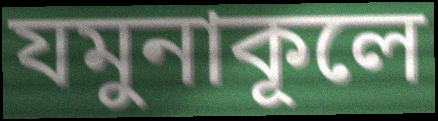
যমুনাকূলে